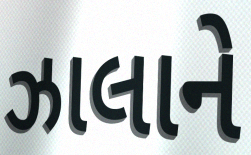
ઝાલાને